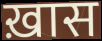
ख़ास